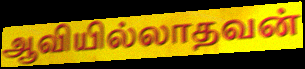
ஆவியில்லாதவன்